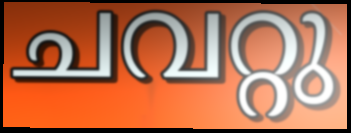
ചവറ്റു